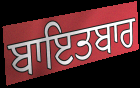
ਬਾਇਤਬਾਰ